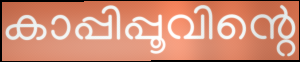
കാപ്പിപ്പൂവിന്റെ